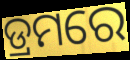
ଡ୍ରମରେ